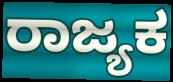
ರಾಜ್ಯಕ